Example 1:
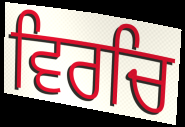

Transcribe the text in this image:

ਵਿਰਚਿ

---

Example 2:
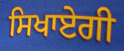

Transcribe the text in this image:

ਸਿਖਾਏਗੀ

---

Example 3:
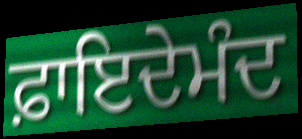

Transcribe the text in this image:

ਫ਼ਾਇਦੇਮੰਦ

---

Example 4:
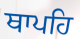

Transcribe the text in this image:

ਥਾਪਹਿ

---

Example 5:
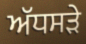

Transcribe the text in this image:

ਅੱਧਸੜੇ